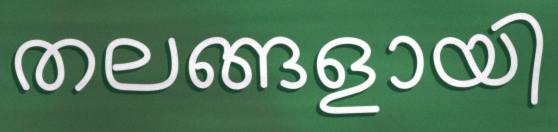
തലങ്ങളായി